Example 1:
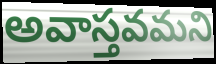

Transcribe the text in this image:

అవాస్తవమని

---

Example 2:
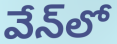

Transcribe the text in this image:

వేన్‌లో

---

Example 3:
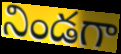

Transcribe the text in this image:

నిండగా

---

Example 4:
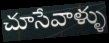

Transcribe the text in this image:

చూసేవాళ్ళు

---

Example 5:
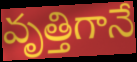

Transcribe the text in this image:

వృత్తిగానే